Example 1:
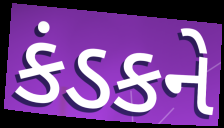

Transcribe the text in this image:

કંડકને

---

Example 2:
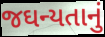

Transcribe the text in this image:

જઘન્યતાનું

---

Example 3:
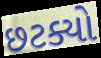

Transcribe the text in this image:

છટક્યો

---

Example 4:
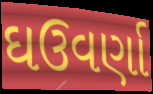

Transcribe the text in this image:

ઘઉવર્ણા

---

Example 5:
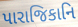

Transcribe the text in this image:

પારાજિકાનિ